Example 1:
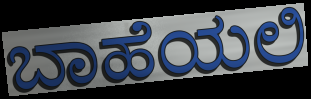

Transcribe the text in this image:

ಬಾಹೆಯಲಿ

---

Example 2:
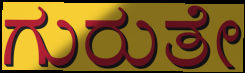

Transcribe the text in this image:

ಗುರುತೇ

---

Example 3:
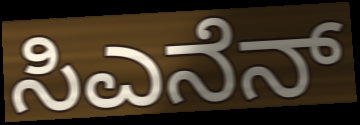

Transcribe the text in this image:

ಸಿಎನೆನ್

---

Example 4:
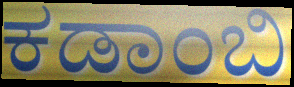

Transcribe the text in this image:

ಕಡಾಂಬಿ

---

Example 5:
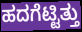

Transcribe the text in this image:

ಹದಗೆಟ್ಟಿತ್ತು